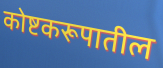
कोष्टकरूपातील